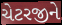
ચેટરજીને